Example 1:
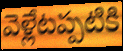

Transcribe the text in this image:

వెళ్లేటప్పటికి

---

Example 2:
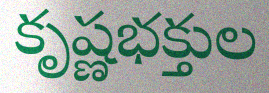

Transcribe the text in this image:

కృష్ణభక్తుల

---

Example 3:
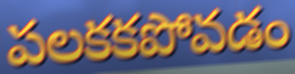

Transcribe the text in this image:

పలకకపోవడం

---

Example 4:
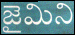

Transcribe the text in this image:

జైమిని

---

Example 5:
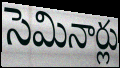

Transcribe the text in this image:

సెమినార్లు